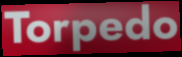
Torpedo